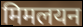
मिमलयन